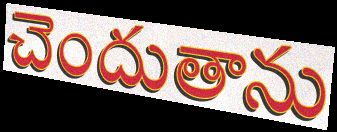
చెందుతాను